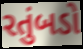
રતુંબડો